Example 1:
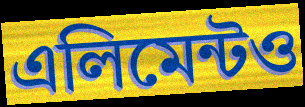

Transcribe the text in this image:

এলিমেন্টও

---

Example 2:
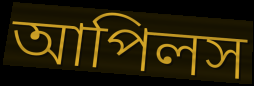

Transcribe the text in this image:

আপিলস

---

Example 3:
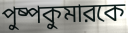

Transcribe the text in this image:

পুষ্পকুমারকে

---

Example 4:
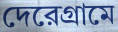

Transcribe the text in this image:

দেরেগ্রামে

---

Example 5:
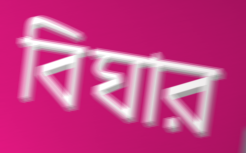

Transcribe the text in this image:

বিঘার